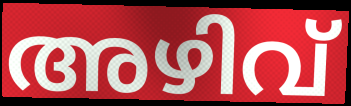
അഴിവ്